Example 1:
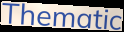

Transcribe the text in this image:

Thematic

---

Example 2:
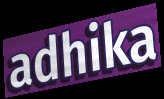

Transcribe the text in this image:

adhika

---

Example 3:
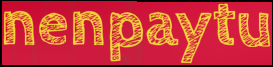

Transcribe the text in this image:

nenpaytu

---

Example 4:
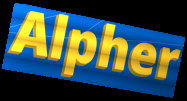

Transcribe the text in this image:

Alpher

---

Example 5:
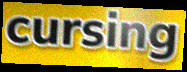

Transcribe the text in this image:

cursing